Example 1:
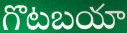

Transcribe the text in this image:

గొటబయా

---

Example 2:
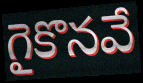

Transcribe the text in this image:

గైకొనవే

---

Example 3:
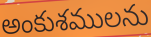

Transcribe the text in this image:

అంకుశములను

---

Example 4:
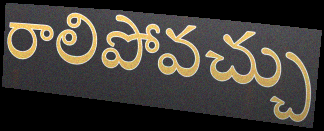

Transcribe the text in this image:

రాలిపోవచ్చు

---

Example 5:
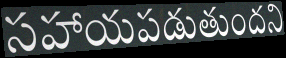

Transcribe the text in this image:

సహాయపడుతుందని